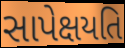
સાપેક્ષયતિ